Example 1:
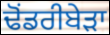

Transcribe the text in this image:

ਢੋਂਡਰੀਬੇੜਾ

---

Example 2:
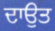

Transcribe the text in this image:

ਦਾਉਤ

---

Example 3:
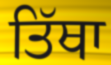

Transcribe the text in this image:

ਤਿੱਥਾ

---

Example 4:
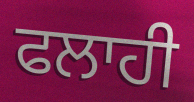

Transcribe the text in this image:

ਫਲਾਹੀ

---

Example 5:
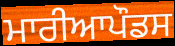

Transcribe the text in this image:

ਮਾਰੀਆਪੌਡਸ